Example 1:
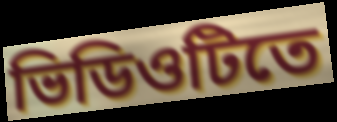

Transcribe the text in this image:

ভিডিওটিতে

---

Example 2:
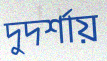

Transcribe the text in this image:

দুদর্শায়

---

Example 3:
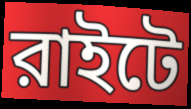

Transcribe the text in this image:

রাইটে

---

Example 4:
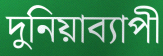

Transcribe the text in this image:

দুনিয়াব্যাপী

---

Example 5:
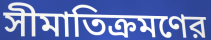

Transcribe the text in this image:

সীমাতিক্রমণের